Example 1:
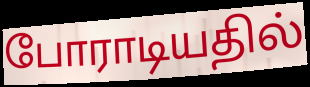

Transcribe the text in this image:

போராடியதில்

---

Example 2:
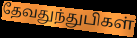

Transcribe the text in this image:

தேவதுந்துபிகள்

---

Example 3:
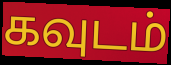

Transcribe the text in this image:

கவுடம்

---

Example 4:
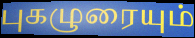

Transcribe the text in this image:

புகழுரையும்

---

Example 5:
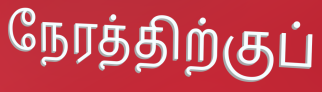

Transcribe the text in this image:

நேரத்திற்குப்